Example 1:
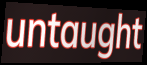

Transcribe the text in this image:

untaught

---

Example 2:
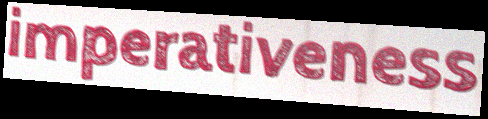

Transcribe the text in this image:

imperativeness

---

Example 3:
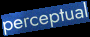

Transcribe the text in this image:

perceptual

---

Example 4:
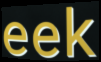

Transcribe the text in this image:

eek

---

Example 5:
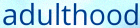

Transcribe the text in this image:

adulthood